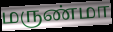
மருண்மா